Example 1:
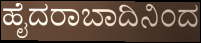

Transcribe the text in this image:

ಹೈದರಾಬಾದಿನಿಂದ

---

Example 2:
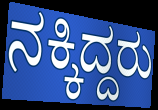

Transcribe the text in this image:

ನಕ್ಕಿದ್ದರು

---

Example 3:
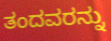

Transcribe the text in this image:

ತಂದವರನ್ನು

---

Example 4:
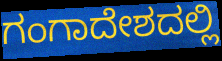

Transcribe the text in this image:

ಗಂಗಾದೇಶದಲ್ಲಿ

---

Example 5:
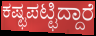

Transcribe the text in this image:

ಕಷ್ಟಪಟ್ಟಿದ್ದಾರೆ